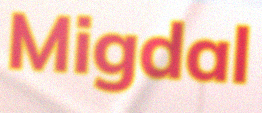
Migdal